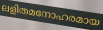
ലളിതമനോഹരമായ